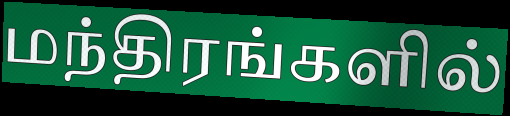
மந்திரங்களில்